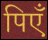
पिएँ